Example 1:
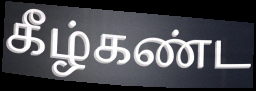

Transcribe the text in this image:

கீழ்கண்ட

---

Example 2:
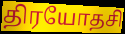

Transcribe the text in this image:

திரயோதசி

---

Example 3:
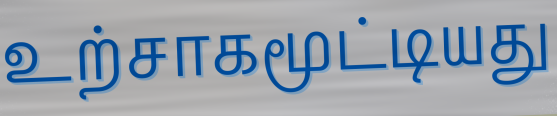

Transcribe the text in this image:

உற்சாகமூட்டியது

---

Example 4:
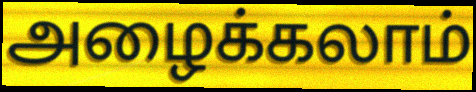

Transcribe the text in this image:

அழைக்கலாம்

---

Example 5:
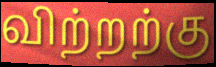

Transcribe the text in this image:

விற்றற்கு